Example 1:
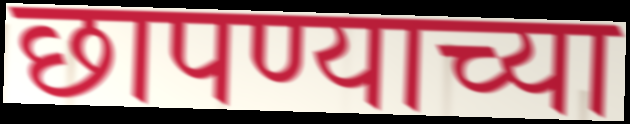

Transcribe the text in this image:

छापण्याच्या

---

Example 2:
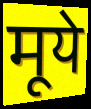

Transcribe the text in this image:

मूये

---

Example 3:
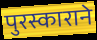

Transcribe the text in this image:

पुरस्काराने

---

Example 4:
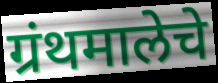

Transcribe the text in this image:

ग्रंथमालेचे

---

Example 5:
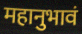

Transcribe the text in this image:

महानुभावं